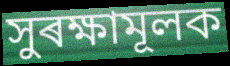
সুৰক্ষামূলক